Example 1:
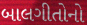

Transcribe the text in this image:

બાલગીતોનો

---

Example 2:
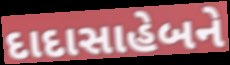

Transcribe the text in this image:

દાદાસાહેબને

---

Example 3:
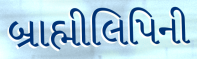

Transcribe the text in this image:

બ્રાહ્મીલિપિની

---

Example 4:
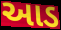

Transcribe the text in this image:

આડ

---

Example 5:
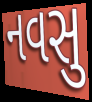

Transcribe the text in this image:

નવસુ